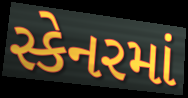
સ્કેનરમાં